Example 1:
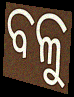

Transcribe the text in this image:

ବଳୁ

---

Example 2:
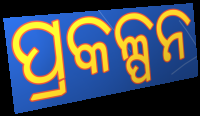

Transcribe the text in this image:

ପ୍ରକଳ୍ପନ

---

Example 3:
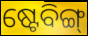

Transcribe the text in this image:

ଷ୍ଟେବିଙ୍ଗ୍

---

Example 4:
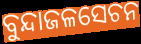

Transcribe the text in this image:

ବୁନ୍ଦାଜଳସେଚନ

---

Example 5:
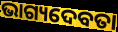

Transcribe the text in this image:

ଭାଗ୍ୟଦେବତା